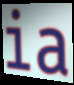
ia